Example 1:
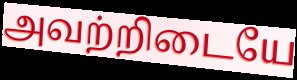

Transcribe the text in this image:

அவற்றிடையே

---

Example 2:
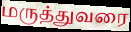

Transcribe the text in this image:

மருத்துவரை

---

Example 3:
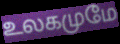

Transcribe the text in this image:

உலகமுமே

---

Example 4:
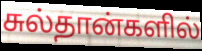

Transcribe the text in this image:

சுல்தான்களில்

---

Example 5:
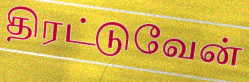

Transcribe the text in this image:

திரட்டுவேன்